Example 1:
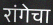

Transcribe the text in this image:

रांगेचा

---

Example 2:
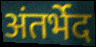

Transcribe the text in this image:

अंतर्भेद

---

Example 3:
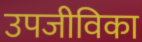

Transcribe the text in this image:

उपजीविका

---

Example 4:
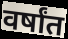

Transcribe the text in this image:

वर्षांत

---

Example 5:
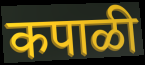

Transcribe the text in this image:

कपाळी